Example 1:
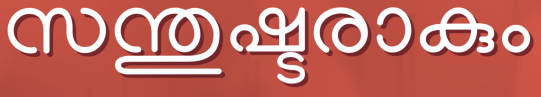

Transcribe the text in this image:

സന്തുഷ്ടരാകും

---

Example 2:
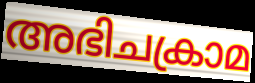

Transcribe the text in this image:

അഭിചക്രാമ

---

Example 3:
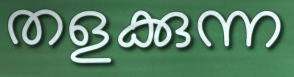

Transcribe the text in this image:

തളക്കുന്ന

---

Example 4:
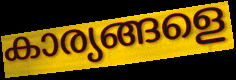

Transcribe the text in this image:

കാര്യങ്ങളെ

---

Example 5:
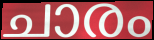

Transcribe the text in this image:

ചാരം